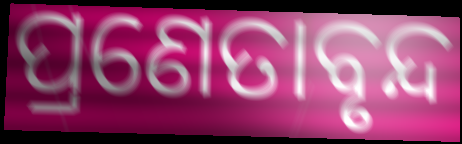
ପ୍ରଣେତାବୃନ୍ଦ